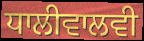
ਧਾਲੀਵਾਲਵੀ